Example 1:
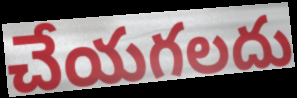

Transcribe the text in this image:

చేయగలదు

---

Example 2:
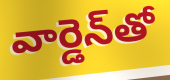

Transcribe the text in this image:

వార్డెన్‌తో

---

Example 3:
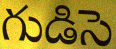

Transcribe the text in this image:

గుడిసె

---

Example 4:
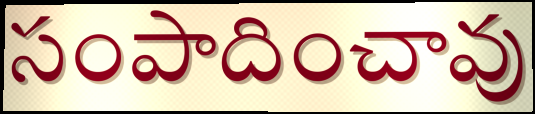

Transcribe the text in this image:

సంపాదించావు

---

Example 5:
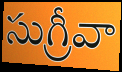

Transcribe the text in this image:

సుగ్రీవా